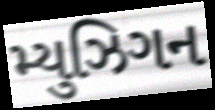
મ્યુઝિગન